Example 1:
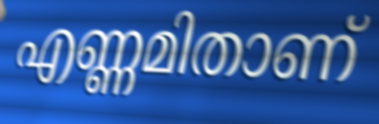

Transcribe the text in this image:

എണ്ണമിതാണ്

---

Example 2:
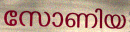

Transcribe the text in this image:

സോണിയ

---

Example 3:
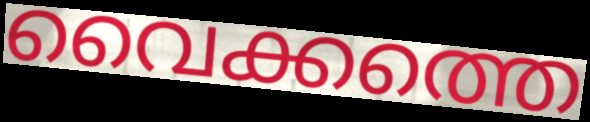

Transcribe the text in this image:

വൈക്കത്തെ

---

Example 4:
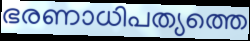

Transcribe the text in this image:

ഭരണാധിപത്യത്തെ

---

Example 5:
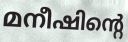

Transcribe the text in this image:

മനീഷിന്റെ